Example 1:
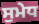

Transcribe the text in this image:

ਸੁਮੇਧ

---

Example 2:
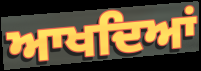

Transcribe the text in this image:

ਆਖਦਿਆਂ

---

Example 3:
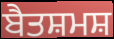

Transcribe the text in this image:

ਬੈਤਸ਼ਮਸ਼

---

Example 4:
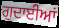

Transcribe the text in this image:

ਗੁਦਾਈਆਂ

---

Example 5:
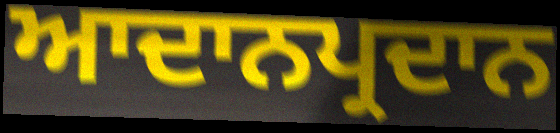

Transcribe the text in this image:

ਆਦਾਨਪ੍ਰਦਾਨ